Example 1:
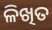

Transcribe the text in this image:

ଳିଖିତ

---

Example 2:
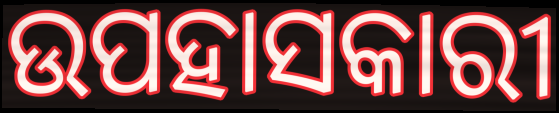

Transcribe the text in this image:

ଉପହାସକାରୀ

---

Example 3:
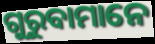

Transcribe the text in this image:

ଗୁରୁବାମାନେ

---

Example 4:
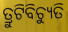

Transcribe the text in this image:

ତ୍ରୁଟିବିଚ୍ୟୁତି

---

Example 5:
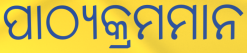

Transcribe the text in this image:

ପାଠ୍ୟକ୍ରମମାନ